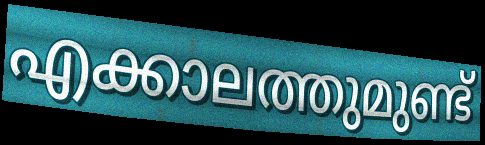
എക്കാലത്തുമുണ്ട്